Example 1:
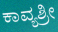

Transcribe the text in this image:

ಕಾವ್ಯಶ್ರೀ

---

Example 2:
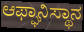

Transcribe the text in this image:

ಆಫ್ಘಾನಿಸ್ಥಾನ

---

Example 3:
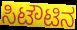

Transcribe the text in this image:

ಸಿಟೌಟಿನ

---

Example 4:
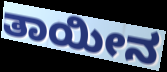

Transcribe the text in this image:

ತಾಯೀನ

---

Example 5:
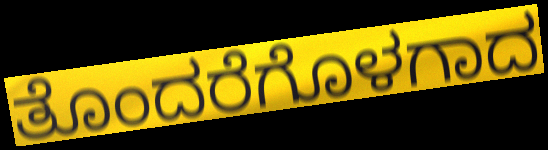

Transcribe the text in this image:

ತೊಂದರೆಗೊಳಗಾದ